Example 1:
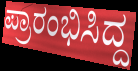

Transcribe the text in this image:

ಪ್ರಾರಂಭಿಸಿದ್ದ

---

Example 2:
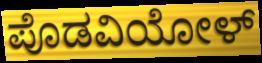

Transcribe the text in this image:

ಪೊಡವಿಯೋಳ್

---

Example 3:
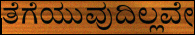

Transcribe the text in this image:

ತೆಗೆಯುವುದಿಲ್ಲವೇ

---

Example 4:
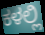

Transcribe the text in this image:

ಕಳಲ್ಲಿ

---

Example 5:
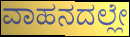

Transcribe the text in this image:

ವಾಹನದಲ್ಲೇ